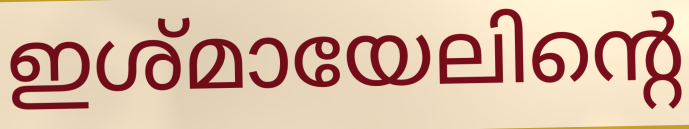
ഇശ്മായേലിന്റെ